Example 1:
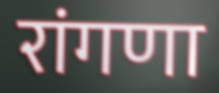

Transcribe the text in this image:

रांगणा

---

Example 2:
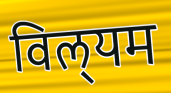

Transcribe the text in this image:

विल्यम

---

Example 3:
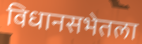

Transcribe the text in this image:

विधानसभेतला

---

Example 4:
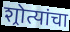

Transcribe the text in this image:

श्रोत्यांचा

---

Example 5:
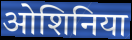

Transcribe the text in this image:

ओशिनिया